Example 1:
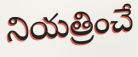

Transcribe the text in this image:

నియత్రించే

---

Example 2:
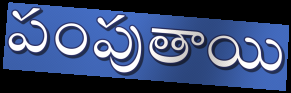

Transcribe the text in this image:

పంపుతాయి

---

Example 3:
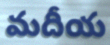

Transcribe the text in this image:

మదీయ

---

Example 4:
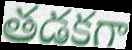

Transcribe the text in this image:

తడకగా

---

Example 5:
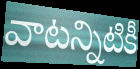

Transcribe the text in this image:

వాటన్నిటికీ